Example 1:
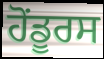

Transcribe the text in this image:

ਹੋਂਡੂਰਸ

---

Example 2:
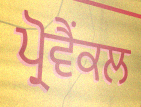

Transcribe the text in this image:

ਪ੍ਰੋਵੈਂਕਲ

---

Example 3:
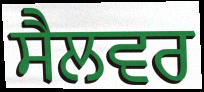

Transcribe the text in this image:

ਸੈਲਵਰ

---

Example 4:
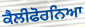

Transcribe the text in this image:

ਕੈਲੀਫੋਰਨਿਆ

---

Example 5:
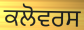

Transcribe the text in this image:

ਕਲੋਵਰਸ